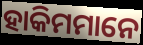
ହାକିମମାନେ